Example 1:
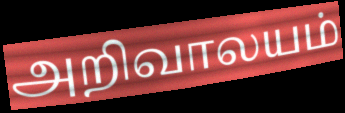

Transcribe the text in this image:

அறிவாலயம்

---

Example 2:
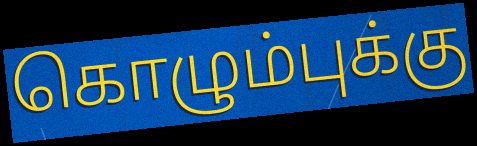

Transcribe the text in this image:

கொழும்புக்கு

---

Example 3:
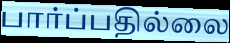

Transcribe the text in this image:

பார்ப்பதில்லை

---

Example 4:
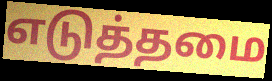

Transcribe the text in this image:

எடுத்தமை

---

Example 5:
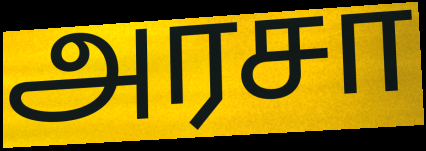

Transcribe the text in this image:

அரசா